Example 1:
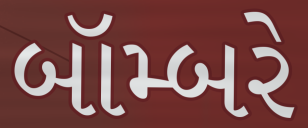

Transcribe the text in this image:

બૉમ્બરે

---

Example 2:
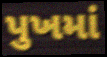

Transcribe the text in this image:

પુખમાં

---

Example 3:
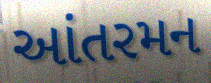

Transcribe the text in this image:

આંતરમન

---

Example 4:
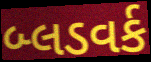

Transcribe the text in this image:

બ્લડવર્ક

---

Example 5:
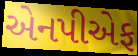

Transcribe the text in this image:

એનપીએફ